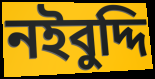
নইবুদ্দি